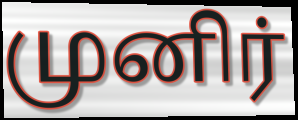
முனிர்